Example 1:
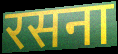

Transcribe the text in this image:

रसना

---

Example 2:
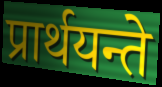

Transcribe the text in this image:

प्रार्थयन्ते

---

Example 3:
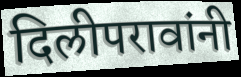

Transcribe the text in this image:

दिलीपरावांनी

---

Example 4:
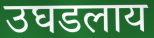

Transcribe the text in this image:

उघडलाय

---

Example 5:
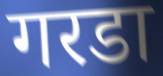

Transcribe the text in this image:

गरडा